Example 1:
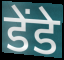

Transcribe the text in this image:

डेंडे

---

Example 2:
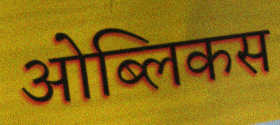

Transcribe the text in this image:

ओब्लिकस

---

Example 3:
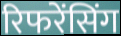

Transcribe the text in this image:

रिफरेंसिंग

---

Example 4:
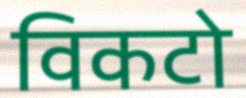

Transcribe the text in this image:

विकटो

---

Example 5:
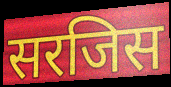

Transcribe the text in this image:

सरजिस